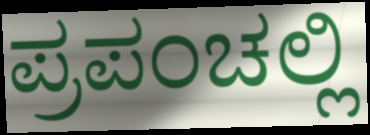
ಪ್ರಪಂಚಲ್ಲಿ